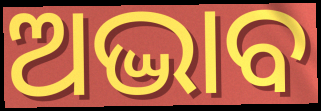
ଅଦ୍ଭାବ